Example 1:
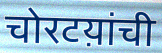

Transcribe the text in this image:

चोरटय़ांची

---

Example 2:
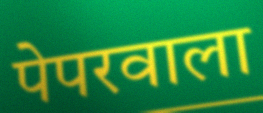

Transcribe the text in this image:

पेपरवाला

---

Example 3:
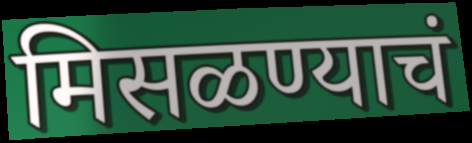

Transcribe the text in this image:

मिसळण्याचं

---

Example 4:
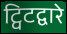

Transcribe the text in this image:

ट्विटद्वारे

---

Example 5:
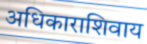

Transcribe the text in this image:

अधिकाराशिवाय